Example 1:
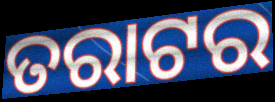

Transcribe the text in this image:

ତରାଟର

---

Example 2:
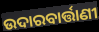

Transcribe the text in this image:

ଉଦାରବାର୍ତ୍ତାଣୀ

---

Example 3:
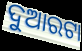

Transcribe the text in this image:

ଦୁଆରଟା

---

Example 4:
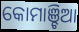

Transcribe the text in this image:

କୋମାଞ୍ଚିଆ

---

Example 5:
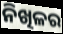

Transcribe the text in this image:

ନିଖିଳର